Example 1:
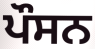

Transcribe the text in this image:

ਪੌਸਨ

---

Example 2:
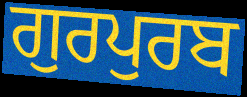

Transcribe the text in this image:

ਗੁਰਪੁਰਬ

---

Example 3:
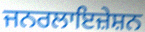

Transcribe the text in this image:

ਜਨਰਲਾਇਜ਼ੇਸ਼ਨ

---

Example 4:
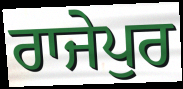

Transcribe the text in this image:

ਰਾਜੇਪੁਰ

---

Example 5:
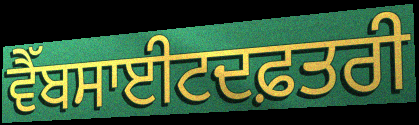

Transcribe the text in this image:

ਵੈੱਬਸਾਈਟਦਫ਼ਤਰੀ